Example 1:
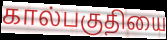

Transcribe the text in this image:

கால்பகுதியை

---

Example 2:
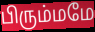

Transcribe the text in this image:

பிரும்மமே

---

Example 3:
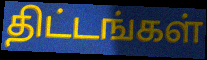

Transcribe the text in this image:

திட்டங்கள்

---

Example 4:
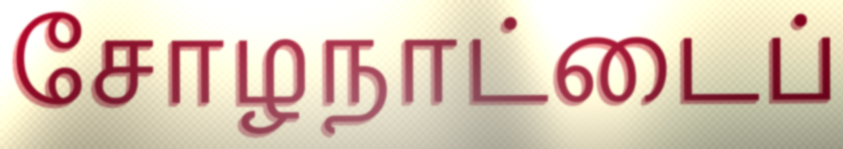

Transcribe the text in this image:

சோழநாட்டைப்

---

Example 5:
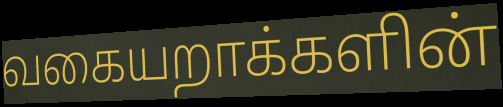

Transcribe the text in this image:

வகையறாக்களின்